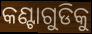
କଣ୍ଟାଗୁଡିକୁ